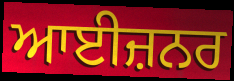
ਆਈਜ਼ਨਰ